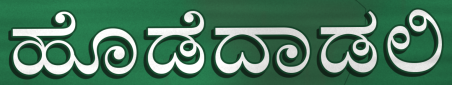
ಹೊಡೆದಾಡಲಿ